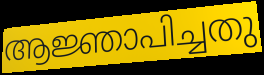
ആജ്ഞാപിച്ചതു